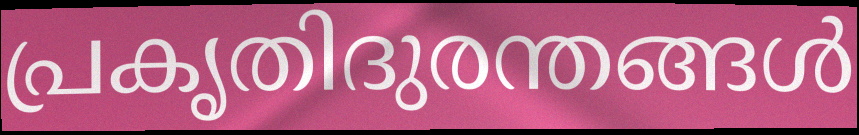
പ്രകൃതിദുരന്തങ്ങൾ